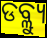
ଡବ୍ଲ୍ୟୁ